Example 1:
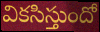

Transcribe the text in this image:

వికసిస్తుందో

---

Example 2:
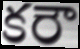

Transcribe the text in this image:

కరౌ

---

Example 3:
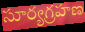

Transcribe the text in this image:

సూర్యగ్రహణ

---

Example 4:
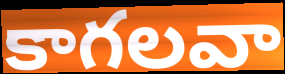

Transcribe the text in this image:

కాగలవా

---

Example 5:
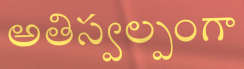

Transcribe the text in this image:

అతిస్వల్పంగా